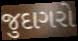
જુદાગરો